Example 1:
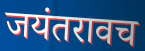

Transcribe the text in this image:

जयंतरावच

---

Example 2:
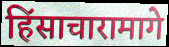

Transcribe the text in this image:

हिंसाचारामागे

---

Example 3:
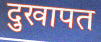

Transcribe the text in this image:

दुखापत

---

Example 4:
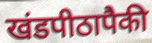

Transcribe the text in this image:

खंडपीठापैकी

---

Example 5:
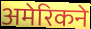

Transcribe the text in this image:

अमेरिकने